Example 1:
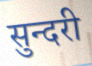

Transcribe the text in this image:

सुन्दरी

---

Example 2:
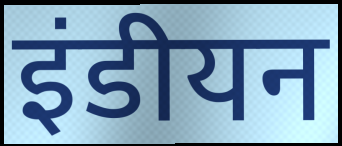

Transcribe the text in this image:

इंडीयन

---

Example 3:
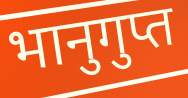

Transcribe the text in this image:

भानुगुप्त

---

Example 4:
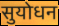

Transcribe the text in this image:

सुयोधन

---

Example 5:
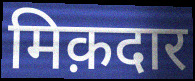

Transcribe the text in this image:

मिक़दार